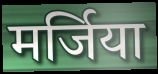
मर्जिया